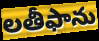
లతీఫాను